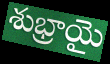
శుభ్రాయై